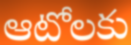
ఆటోలకు